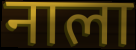
नाला